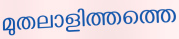
മുതലാളിത്തത്തെ